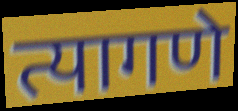
त्यागणे